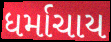
ધર્માચાય